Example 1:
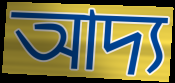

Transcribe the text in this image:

আদ্য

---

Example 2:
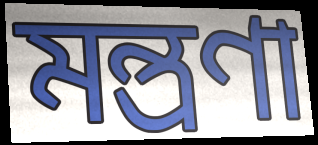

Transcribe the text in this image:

মন্ত্রণা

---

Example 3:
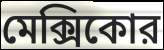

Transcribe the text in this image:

মেক্সিকোর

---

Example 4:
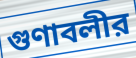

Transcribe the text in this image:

গুণাবলীর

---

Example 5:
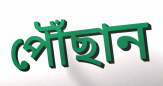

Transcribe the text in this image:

পৌঁছান